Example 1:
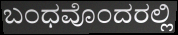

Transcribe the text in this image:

ಬಂಧವೊಂದರಲ್ಲಿ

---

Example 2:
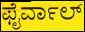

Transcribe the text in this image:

ಫೈರ್ವಾಲ್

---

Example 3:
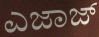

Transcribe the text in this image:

ಎಜಾಜ್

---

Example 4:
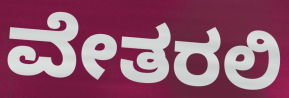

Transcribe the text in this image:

ವೇತರಲಿ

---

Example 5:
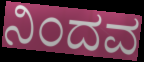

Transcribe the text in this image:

ನಿಂದವ